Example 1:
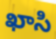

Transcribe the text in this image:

ఖాసి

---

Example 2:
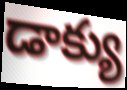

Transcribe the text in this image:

డాక్యు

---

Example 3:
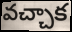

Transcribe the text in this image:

వచ్చాక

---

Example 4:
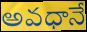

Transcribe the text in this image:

అవధానే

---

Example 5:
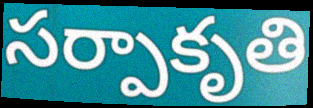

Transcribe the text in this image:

సర్పాకృతి